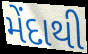
મેંદાથી